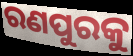
ରଣପୁରକୁ